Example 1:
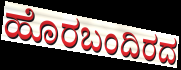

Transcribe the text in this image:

ಹೊರಬಂದಿರದ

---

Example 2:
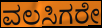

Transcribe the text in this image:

ವಲಸಿಗರೇ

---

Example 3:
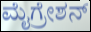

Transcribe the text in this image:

ಮೈಗ್ರೇಶನ್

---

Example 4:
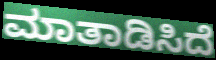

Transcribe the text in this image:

ಮಾತಾಡಿಸಿದೆ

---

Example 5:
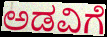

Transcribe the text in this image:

ಅಡವಿಗೆ